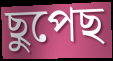
ছুপেছ